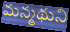
మన్మథుని